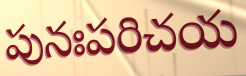
పునఃపరిచయ